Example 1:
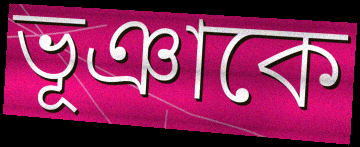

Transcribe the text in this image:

ভূঞাকে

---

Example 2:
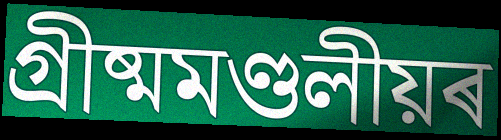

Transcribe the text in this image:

গ্ৰীষ্মমণ্ডলীয়ৰ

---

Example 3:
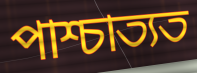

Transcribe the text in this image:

পাশ্চাত্যত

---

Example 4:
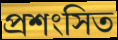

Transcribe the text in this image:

প্ৰশংসিত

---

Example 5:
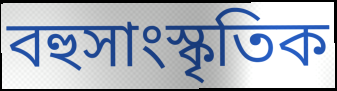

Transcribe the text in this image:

বহুসাংস্কৃতিক